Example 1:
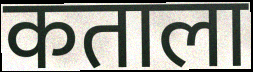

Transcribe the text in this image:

कताला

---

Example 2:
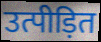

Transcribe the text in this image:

उत्पीड़ित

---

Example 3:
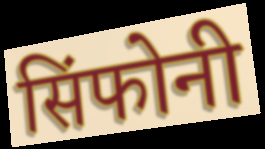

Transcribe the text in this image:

सिंफोनी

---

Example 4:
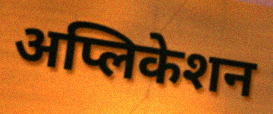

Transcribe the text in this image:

अप्लिकेशन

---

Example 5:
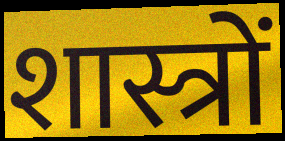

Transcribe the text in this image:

शास्त्रों